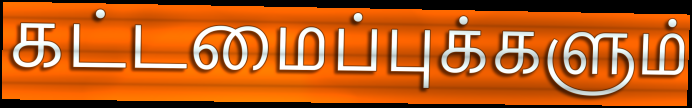
கட்டமைப்புக்களும்